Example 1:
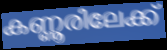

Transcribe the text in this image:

കണ്ണൂരിലേക്ക്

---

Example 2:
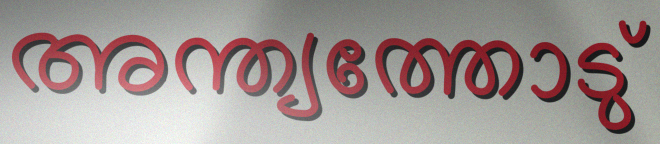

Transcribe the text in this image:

അന്ത്യത്തോടു്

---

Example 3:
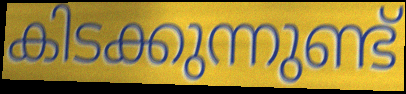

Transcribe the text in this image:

കിടക്കുന്നുണ്ട്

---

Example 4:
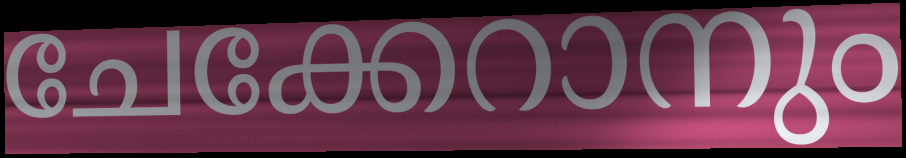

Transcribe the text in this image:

ചേക്കേറാനും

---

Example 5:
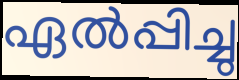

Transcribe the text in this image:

ഏൽപ്പിച്ചു